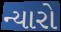
ન્યારો